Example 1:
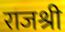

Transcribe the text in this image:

राजश्री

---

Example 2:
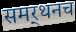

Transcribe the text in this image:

समर्थनच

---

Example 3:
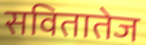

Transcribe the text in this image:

सवितातेज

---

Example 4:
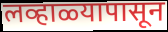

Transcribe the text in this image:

लव्हाळ्यापासून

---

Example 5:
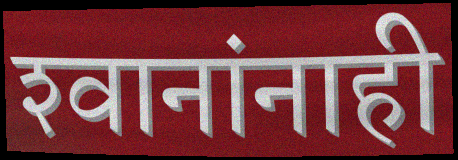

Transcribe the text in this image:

श्वानांनाही